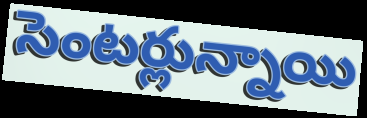
సెంటర్లున్నాయి